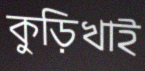
কুড়িখাই